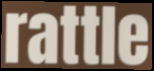
rattle